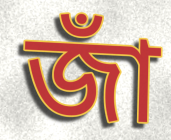
জাঁ